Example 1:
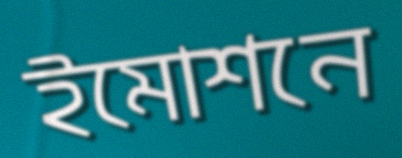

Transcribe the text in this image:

ইমোশনে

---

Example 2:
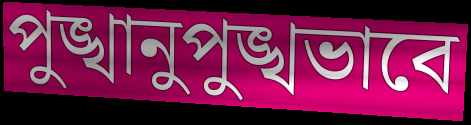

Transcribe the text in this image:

পুঙ্খানুপুঙ্খভাবে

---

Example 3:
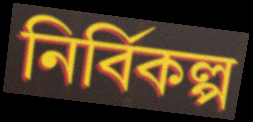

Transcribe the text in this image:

নির্বিকল্প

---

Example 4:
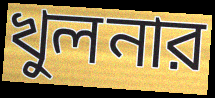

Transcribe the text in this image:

খুলনার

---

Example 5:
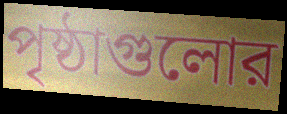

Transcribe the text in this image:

পৃষ্ঠাগুলোর